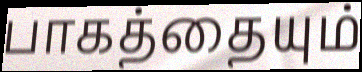
பாகத்தையும்